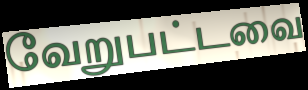
வேறுபட்டவை